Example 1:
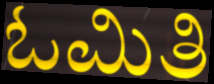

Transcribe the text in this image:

ಓಮಿತಿ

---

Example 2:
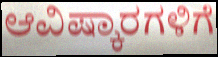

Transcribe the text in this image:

ಆವಿಷ್ಕಾರಗಳಿಗೆ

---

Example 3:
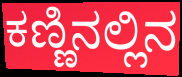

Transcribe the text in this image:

ಕಣ್ಣಿನಲ್ಲಿನ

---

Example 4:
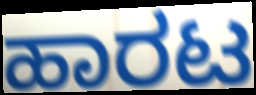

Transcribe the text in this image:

ಹಾರಟ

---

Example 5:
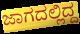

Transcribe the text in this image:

ಜಾಗದಲ್ಲಿದ್ದ